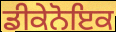
ਡੀਕੇਨੋਇਕ